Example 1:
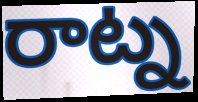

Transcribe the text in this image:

రాట్న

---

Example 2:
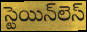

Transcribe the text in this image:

స్టెయిన్‌లెస్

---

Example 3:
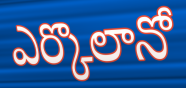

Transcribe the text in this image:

ఎర్కొలానో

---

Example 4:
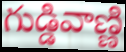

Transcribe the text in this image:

గుడ్డివాణ్ణి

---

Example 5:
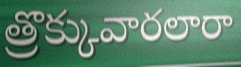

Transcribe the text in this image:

త్రొక్కువారలారా